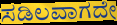
ಸಡಿಲವಾಗದೇ